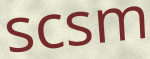
scsm